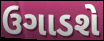
ઉગાડશે